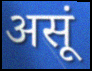
असूं